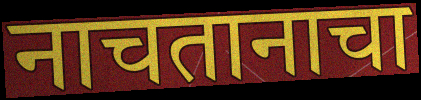
नाचतानाचा